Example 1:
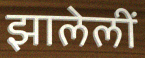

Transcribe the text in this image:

झालेलीं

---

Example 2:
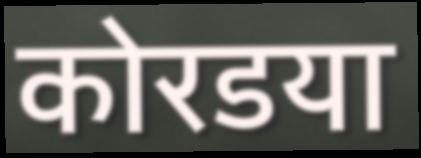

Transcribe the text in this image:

कोरडया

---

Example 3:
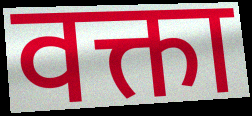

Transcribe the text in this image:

वक्ता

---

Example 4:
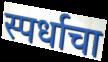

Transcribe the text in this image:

स्पर्धाचा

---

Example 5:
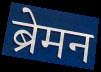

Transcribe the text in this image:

ब्रेमन